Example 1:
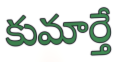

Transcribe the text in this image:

కుమార్తే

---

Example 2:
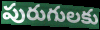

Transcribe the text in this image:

పురుగులకు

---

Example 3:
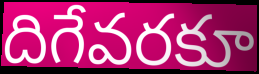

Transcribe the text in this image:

దిగేవరకూ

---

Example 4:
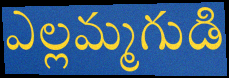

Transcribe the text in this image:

ఎల్లమ్మగుడి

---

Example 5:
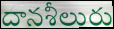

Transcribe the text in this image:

దానశీలురు